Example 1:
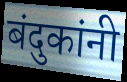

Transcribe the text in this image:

बंदुकांनी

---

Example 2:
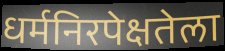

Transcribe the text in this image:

धर्मनिरपेक्षतेला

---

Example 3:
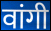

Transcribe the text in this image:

वांगी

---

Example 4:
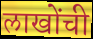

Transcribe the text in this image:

लाखोंची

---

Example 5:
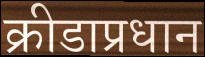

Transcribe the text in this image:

क्रीडाप्रधान